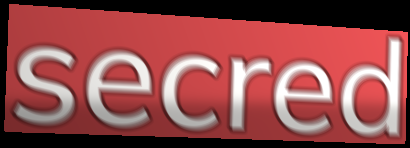
secred